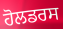
ਹੋਲਡਰਸ